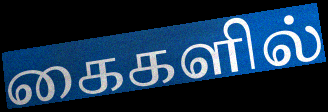
கைகளில்